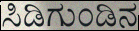
ಸಿಡಿಗುಂಡಿನ